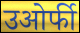
उओर्फी